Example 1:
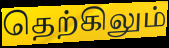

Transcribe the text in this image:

தெற்கிலும்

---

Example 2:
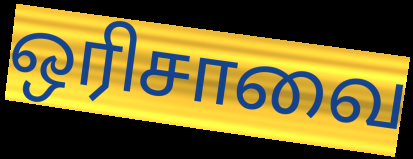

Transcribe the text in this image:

ஒரிசாவை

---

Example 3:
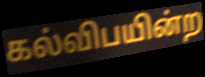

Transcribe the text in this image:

கல்விபயின்ற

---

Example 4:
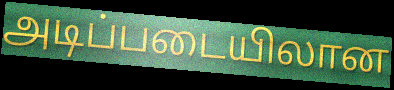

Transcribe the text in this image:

அடிப்படையிலான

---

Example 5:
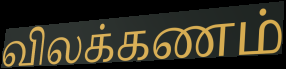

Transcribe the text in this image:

விலக்கணம்